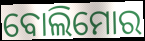
ବୋଲିମୋର